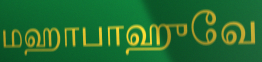
மஹாபாஹுவே